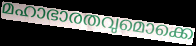
മഹാഭാരതവുമൊക്കെ